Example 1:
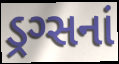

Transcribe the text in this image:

ડ્રગ્સનાં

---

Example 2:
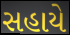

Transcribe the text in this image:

સહાયે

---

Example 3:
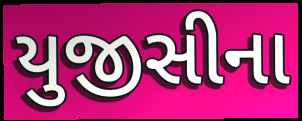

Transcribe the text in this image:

યુજીસીના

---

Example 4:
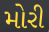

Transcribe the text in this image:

મોરી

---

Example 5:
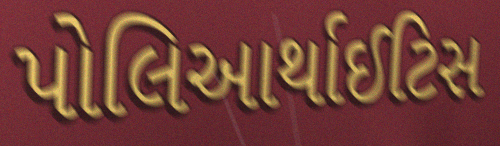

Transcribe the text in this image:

પોલિઆર્થાઈટિસ